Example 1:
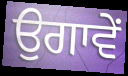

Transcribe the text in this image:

ਉਗਾਵੇਂ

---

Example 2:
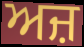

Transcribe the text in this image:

ਅਜ਼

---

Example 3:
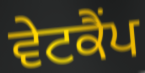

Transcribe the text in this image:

ਵੇਟਕੈਂਪ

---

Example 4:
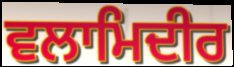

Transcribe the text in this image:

ਵਲਾਮਿਦੀਰ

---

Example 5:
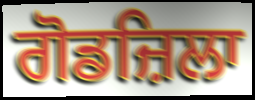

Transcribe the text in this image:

ਗੋਡਜ਼ਿਲਾ